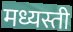
मध्यस्ती